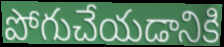
పోగుచేయడానికి